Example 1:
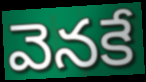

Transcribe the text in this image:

వెనకే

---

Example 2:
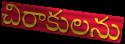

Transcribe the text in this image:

చిరాకులను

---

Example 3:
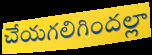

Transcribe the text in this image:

చేయగలిగిందల్లా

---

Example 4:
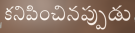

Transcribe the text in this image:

కనిపించినప్పుడు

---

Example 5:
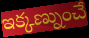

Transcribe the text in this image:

ఇక్కణ్నుంచే